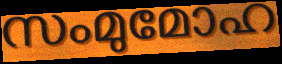
സംമുമോഹ